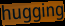
hugging